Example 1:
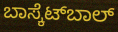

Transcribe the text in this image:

ಬಾಸ್ಕೆಟ್‍ಬಾಲ್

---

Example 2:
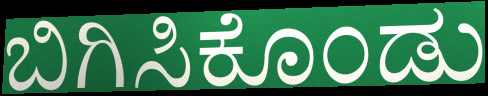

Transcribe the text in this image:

ಬಿಗಿಸಿಕೊಂಡು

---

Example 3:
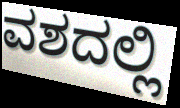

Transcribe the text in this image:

ವಶದಲ್ಲಿ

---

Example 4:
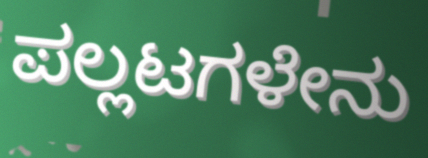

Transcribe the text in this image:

ಪಲ್ಲಟಗಳೇನು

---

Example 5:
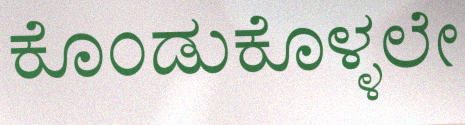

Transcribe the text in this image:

ಕೊಂಡುಕೊಳ್ಳಲೇ